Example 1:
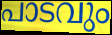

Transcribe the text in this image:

പാടവും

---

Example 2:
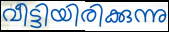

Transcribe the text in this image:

വീട്ടിയിരിക്കുന്നു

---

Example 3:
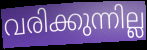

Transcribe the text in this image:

വരിക്കുന്നില്ല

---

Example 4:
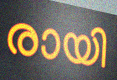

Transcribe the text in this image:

രായി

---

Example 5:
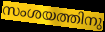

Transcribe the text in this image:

സംശയത്തിനു